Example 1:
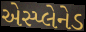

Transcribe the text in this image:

એસ્પ્લેનેડ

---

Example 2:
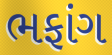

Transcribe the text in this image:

ભફાંગ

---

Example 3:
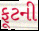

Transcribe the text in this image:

ફૂટની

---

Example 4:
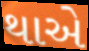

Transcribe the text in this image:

થાએ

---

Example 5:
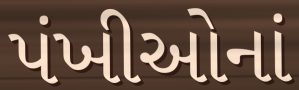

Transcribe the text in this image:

પંખીઓનાં